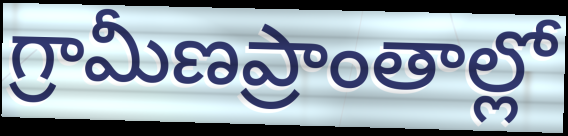
గ్రామీణప్రాంతాల్లో